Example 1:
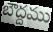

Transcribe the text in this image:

బౌద్దము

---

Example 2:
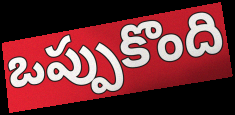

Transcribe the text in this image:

ఒప్పుకొంది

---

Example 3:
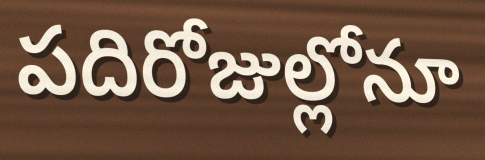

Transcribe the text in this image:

పదిరోజుల్లోనూ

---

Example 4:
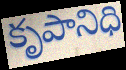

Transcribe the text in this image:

కృపానిధి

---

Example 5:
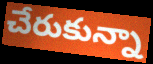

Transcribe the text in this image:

చేరుకున్నా